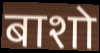
बाशो